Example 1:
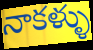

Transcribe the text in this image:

నాకళ్ళు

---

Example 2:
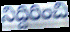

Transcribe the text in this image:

నిద్దిరించి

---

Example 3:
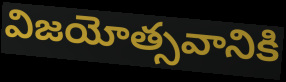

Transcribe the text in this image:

విజయోత్సవానికి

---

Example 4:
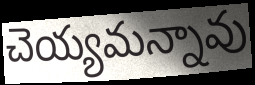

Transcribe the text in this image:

చెయ్యమన్నావు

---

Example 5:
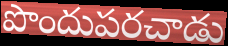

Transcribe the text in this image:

పొందుపరచాడు